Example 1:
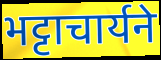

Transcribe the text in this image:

भट्टाचार्यने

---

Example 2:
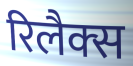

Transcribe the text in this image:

रिलैक्‍स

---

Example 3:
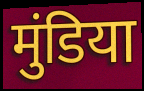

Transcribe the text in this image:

मुंडिया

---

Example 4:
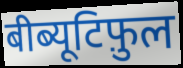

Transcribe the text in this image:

बीब्यूटिफ़ुल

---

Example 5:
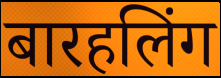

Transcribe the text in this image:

बारहलिंग